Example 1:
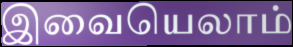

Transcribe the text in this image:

இவையெலாம்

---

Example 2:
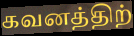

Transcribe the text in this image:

கவனத்திற்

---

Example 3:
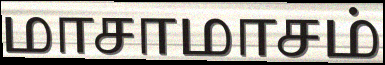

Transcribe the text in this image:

மாசாமாசம்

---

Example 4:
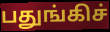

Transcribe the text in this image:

பதுங்கிச்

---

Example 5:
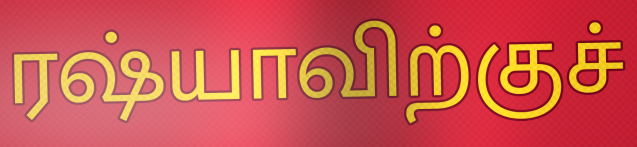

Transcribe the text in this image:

ரஷ்யாவிற்குச்